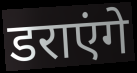
डराएंगे